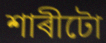
শাৰীটো